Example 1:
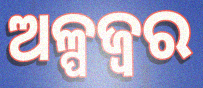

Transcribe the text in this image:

ଅଳ୍ପଜ୍ଵର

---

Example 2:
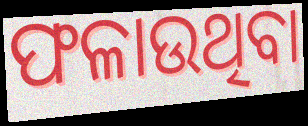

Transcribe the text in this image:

ଫଳାଉଥିବା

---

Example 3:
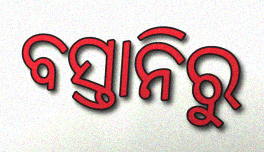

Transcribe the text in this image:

ବସ୍ତାନିରୁ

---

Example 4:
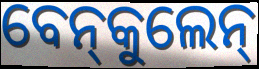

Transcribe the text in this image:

ବେନ୍‍କୁଲେନ୍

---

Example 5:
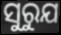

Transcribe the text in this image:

ସୁରୁଯ